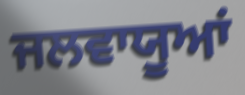
ਜਲਵਾਯੂਆਂ